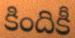
కిందికీ